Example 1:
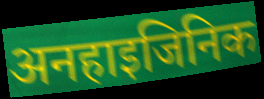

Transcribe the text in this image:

अनहाइजिनिक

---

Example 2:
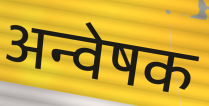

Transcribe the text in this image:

अन्वेषक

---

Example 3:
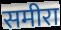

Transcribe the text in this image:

समीरा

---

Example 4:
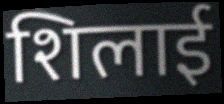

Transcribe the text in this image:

शिलाई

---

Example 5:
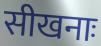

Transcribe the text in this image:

सीखनाः